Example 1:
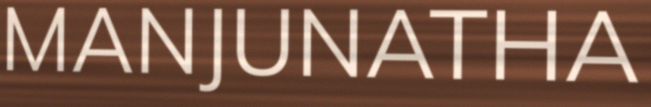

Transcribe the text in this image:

MANJUNATHA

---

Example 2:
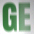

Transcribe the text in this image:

GE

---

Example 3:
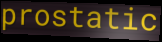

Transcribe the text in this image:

prostatic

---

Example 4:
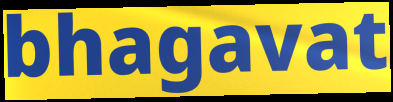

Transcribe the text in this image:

bhagavat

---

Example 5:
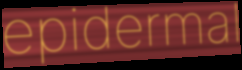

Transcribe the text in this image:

epidermal